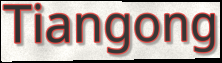
Tiangong